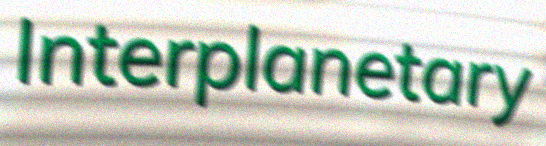
Interplanetary